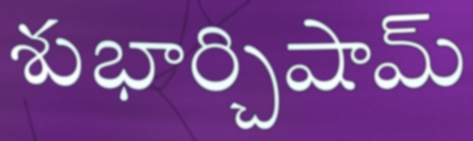
శుభార్చిషామ్